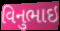
વિનુભાઇ